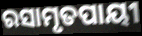
ରସାମୃତପାୟୀ